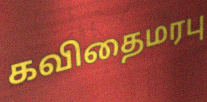
கவிதைமரபு